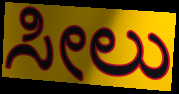
ಸೀಲು